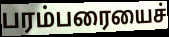
பரம்பரையைச்